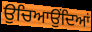
ਉਚਿਆਉਂਦਿਆਂ